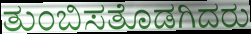
ತುಂಬಿಸತೊಡಗಿದರು